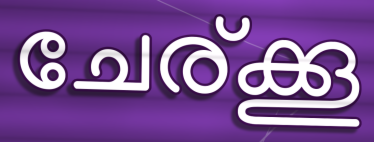
ചേര്ക്കൂ